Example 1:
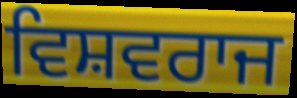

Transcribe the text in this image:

ਵਿਸ਼ਵਰਾਜ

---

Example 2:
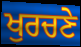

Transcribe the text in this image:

ਖੁਰਚਣੇ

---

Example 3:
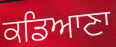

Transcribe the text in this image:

ਕਡਿਆਣਾ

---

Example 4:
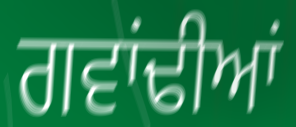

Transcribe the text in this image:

ਗਵਾਂਢੀਆਂ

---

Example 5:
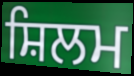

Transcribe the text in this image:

ਸ਼ਿਲਮ